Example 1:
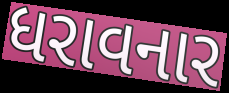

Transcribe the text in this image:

ધરાવનાર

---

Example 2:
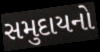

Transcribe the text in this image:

સમુદાયનો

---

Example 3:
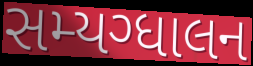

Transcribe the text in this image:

સમ્યગ્ધાલન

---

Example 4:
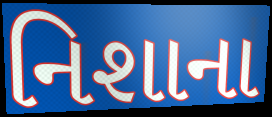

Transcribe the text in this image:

નિશાના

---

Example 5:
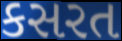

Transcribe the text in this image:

કસરત